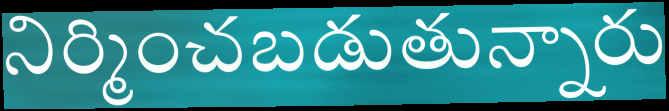
నిర్మించబడుతున్నారు